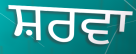
ਸ਼ਰਵਾ